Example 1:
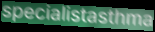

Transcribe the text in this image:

specialistasthma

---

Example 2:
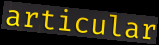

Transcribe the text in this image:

articular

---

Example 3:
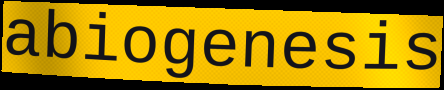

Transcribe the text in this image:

abiogenesis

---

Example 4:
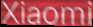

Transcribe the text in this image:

Xiaomi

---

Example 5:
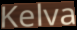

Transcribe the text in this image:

Kelva